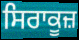
ਸਿਰਾਕੂਜ਼